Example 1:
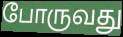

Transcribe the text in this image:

போருவது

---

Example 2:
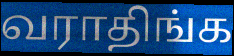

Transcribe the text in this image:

வராதிங்க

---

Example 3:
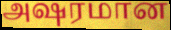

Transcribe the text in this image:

அஷரமான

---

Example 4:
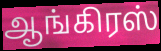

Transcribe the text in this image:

ஆங்கிரஸ்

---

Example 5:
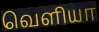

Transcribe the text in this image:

வெளியா